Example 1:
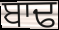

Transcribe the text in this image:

ਬਾਢ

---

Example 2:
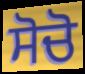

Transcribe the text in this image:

ਸੋਚੋ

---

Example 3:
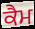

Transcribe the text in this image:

ਕੈਮ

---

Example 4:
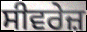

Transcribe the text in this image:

ਸੀਵਰੇਜ਼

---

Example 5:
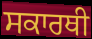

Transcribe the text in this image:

ਸਕਾਰਥੀ